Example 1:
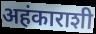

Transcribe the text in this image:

अहंकाराशी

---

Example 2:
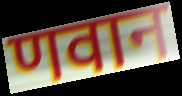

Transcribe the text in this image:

णवान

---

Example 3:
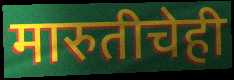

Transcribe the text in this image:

मारुतीचेही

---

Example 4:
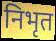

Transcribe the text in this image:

निभृत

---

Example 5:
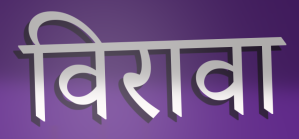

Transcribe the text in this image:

विरावा